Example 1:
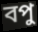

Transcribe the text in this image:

বপু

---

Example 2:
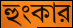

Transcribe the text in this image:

হুংকার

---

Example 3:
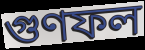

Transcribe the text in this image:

গুণফল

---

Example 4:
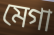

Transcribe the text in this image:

মেগা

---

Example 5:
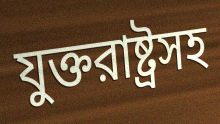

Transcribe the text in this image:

যুক্তরাষ্ট্রসহ